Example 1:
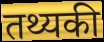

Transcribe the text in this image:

तथ्यकी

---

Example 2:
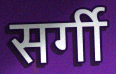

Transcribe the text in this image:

सर्गी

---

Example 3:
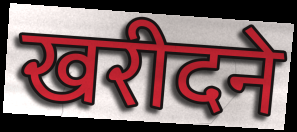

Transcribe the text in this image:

खरीदने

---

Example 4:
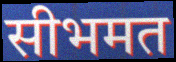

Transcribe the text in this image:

सीभमत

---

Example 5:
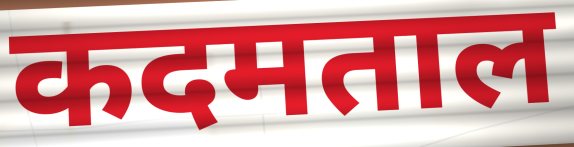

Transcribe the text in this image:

कदमताल